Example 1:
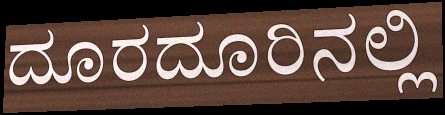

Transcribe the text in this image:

ದೂರದೂರಿನಲ್ಲಿ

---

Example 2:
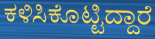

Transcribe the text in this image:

ಕಳಿಸಿಕೊಟ್ಟಿದ್ದಾರೆ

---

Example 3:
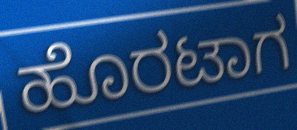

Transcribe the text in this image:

ಹೊರಟಾಗ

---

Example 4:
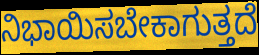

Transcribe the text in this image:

ನಿಭಾಯಿಸಬೇಕಾಗುತ್ತದೆ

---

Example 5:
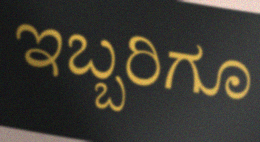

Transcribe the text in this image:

ಇಬ್ಬರಿಗೂ